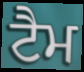
ਟੈਮ